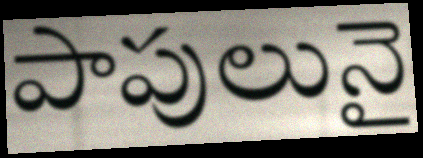
పాపులునై